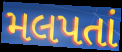
મલપતાં